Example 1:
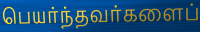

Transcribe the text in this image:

பெயர்ந்தவர்களைப்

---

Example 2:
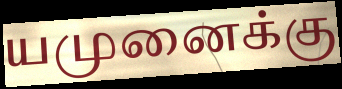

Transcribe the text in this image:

யமுனைக்கு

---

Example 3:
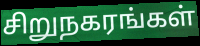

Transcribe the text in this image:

சிறுநகரங்கள்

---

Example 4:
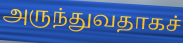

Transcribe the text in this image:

அருந்துவதாகச்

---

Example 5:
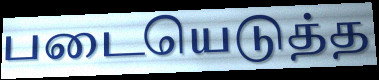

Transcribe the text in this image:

படையெடுத்த